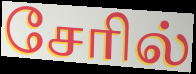
சேரில்